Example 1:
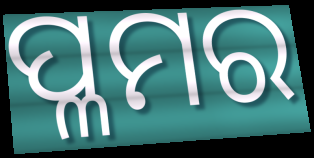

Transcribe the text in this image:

ପ୍ଳମର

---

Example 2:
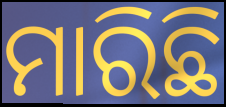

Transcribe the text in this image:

ମାରିଛି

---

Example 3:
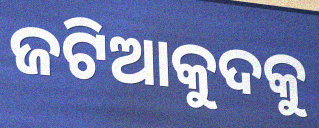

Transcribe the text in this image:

ଜଟିଆକୁଦକୁ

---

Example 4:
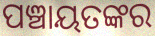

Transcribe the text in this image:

ପଞ୍ଚାୟତଙ୍କର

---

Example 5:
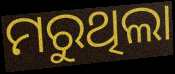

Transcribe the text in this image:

ମରୁଥିଲା